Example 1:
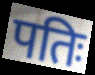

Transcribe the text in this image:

पतिः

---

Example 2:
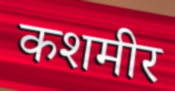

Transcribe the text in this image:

कशमीर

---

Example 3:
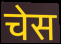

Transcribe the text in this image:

चेस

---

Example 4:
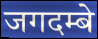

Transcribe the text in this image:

जगदम्बे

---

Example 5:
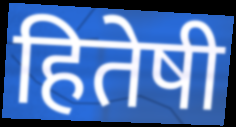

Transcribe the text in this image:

हितेषी